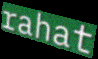
rahat